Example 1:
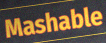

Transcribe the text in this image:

Mashable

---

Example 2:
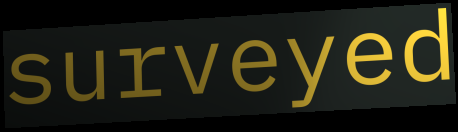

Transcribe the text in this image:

surveyed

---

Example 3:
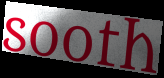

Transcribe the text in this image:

sooth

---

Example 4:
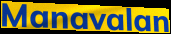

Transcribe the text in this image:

Manavalan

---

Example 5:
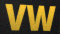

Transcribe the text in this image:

VW